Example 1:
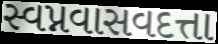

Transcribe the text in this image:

સ્વપ્નવાસવદત્તા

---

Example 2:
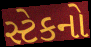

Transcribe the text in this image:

સ્ટેકનો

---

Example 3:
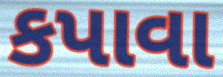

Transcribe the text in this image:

કપાવા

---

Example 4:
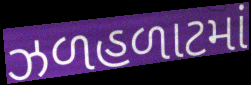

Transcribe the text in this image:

ઝળહળાટમાં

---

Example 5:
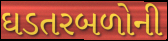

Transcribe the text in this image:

ઘડતરબળોની